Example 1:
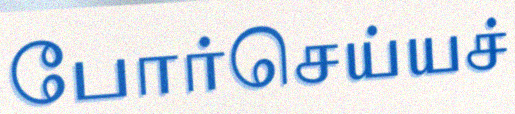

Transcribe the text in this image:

போர்செய்யச்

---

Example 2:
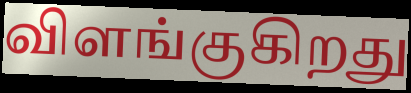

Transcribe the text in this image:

விளங்குகிறது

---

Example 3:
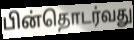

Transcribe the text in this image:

பின்தொடர்வது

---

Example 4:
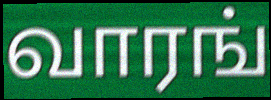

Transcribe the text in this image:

வாரங்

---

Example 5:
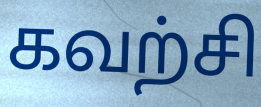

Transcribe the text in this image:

கவற்சி